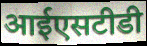
आईएसटीडी